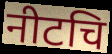
नीटचि